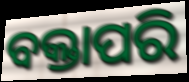
ବକ୍ତାପରି